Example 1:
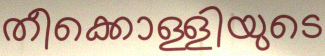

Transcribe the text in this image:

തീക്കൊള്ളിയുടെ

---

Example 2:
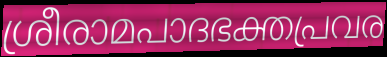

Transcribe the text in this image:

ശ്രീരാമപാദഭക്തപ്രവര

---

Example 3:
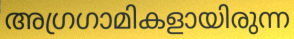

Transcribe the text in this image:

അഗ്രഗാമികളായിരുന്ന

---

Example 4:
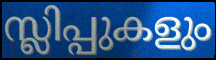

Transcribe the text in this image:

സ്ലിപ്പുകളും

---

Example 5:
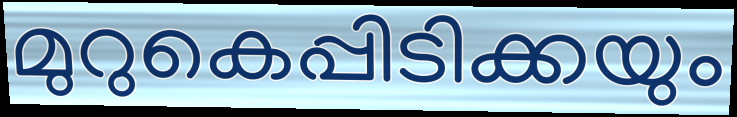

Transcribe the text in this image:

മുറുകെപ്പിടിക്കയും